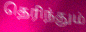
தெரிந்தும்